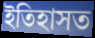
ইতিহাসত